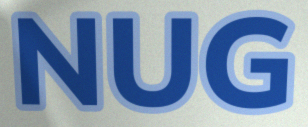
NUG